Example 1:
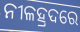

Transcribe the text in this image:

ନୀଳହ୍ରଦରେ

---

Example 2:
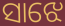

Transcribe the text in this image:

ସାଝେ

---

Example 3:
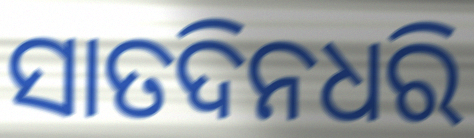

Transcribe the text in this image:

ସାତଦିନଧରି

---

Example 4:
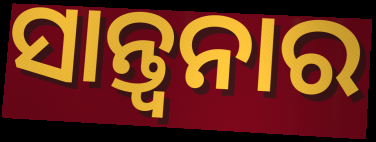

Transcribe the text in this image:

ସାନ୍ତ୍ୱନାର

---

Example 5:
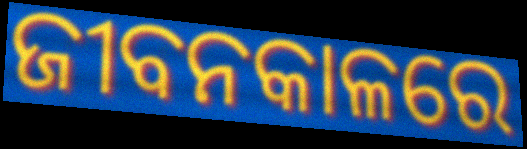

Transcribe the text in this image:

ଜୀବନକାଳରେ